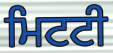
ਮਿਟਟੀ